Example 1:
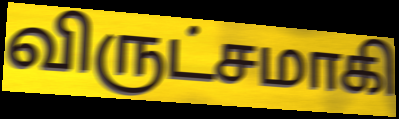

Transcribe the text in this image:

விருட்சமாகி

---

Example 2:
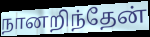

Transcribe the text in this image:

நானறிந்தேன்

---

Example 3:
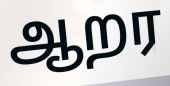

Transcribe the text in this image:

ஆறர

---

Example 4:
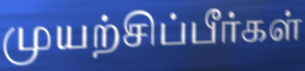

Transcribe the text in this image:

முயற்சிப்பீர்கள்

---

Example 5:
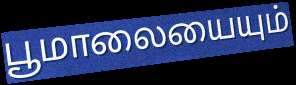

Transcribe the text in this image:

பூமாலையையும்